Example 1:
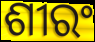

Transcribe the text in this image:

ଶୀରଂ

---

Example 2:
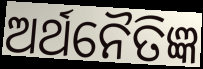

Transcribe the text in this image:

ଅର୍ଥନୈତିଜ୍ଞ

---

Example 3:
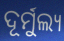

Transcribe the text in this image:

ଦୂର୍ମୁଲ୍ୟ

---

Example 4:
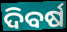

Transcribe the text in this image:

ଦିବର୍ଷ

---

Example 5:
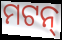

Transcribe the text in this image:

ମଟନ୍